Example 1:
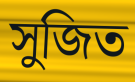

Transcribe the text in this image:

সুজিত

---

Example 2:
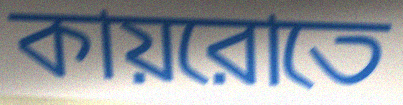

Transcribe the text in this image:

কায়রোতে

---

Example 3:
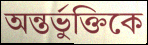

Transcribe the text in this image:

অন্তর্ভুক্তিকে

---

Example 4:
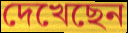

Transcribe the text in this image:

দেখেছেন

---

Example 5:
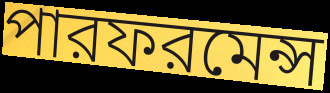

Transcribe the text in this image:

পারফরমেন্স